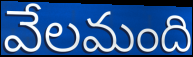
వేలమంది